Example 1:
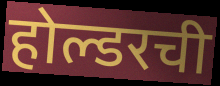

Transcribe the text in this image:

होल्डरची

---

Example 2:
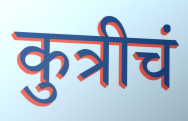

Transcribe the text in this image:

कुत्रीचं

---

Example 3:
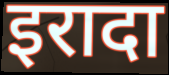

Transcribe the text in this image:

इरादा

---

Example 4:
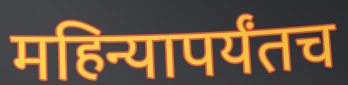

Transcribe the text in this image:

महिन्यापर्यंतच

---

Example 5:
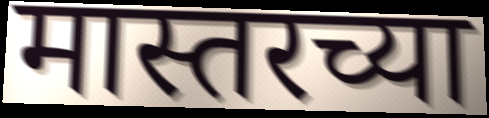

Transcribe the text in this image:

मास्तरच्या